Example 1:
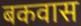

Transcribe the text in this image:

बकवास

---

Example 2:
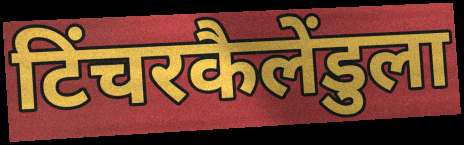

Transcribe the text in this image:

टिंचरकैलेंडुला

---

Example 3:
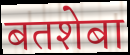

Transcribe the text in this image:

बतशेबा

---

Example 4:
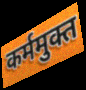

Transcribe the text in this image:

कर्ममुक्त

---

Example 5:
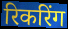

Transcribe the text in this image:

रिकरिंग